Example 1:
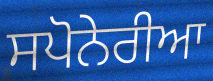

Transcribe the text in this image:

ਸਪੋਨੇਰੀਆ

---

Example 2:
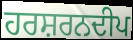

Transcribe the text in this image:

ਹਰਸ਼ਰਨਦੀਪ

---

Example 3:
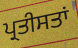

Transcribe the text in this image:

ਪ੍ਰਤੀਸਤਾਂ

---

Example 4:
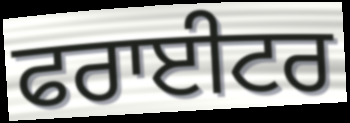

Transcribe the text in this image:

ਫਰਾਈਟਰ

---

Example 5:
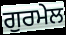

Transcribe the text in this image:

ਗੁਰਮੇਲ